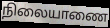
நிலையாணை